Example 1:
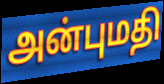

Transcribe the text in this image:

அன்புமதி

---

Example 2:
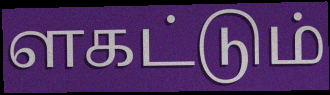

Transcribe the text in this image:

ளகட்டும்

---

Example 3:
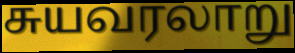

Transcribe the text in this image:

சுயவரலாறு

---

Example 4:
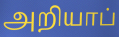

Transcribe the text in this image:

அறியாப்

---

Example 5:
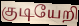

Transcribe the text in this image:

குடியேறி